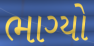
ભાગ્યો